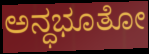
ಅನ್ಧಭೂತೋ